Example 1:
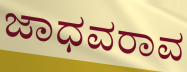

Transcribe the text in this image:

ಜಾಧವರಾವ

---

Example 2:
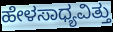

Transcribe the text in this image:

ಹೇಳಸಾಧ್ಯವಿತ್ತು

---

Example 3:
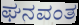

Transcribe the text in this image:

ಘನವಂತ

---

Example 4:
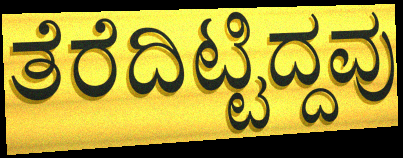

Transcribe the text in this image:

ತೆರೆದಿಟ್ಟಿದ್ದವು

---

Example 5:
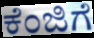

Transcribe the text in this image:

ಕೆಂಜಿಗೆ